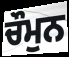
ਚੌਮੁਨ